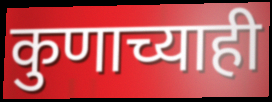
कुणाच्याही